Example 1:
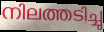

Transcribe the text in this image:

നിലത്തടിച്ചു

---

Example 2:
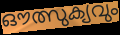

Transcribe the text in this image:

ഔത്സുക്യവും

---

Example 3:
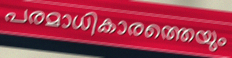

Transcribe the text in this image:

പരമാധികാരത്തെയും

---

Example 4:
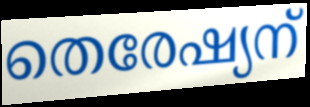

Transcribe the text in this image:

തെരേഷ്യന്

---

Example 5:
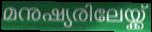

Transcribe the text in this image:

മനുഷ്യരിലേയ്ക്ക്